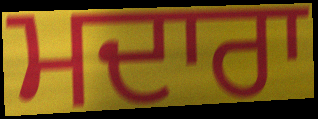
ਮਦਾਰਾ